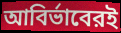
আবির্ভাবেরই